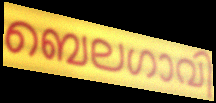
ബെലഗാവി